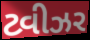
ટ્વીઝર